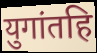
युगांतहि